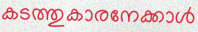
കടത്തുകാരനേക്കാൾ